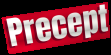
Precept